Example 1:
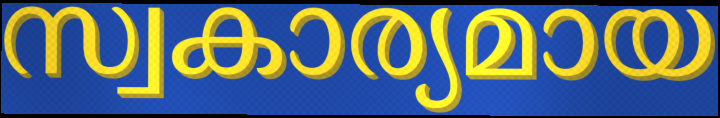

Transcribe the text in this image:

സ്വകാര്യമായ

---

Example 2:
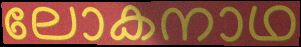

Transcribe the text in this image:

ലോകനാഥ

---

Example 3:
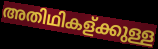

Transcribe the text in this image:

അതിഥികള്ക്കുള്ള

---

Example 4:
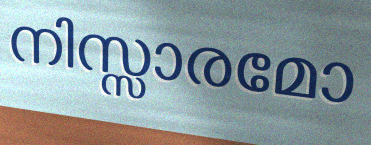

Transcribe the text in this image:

നിസ്സാരമോ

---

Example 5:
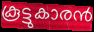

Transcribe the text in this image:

കൂട്ടുകാരൻ